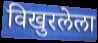
विखुरलेला